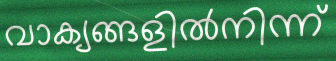
വാക്യങ്ങളിൽനിന്ന്